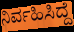
ನಿರ್ವಹಿಸಿದ್ದೆ